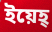
ইয়েহ্